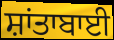
ਸ਼ਾਂਤਾਬਾਈ